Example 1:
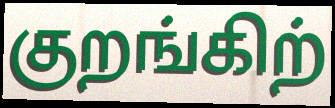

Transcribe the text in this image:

குறங்கிற்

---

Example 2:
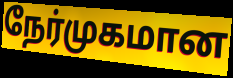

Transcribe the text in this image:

நேர்முகமான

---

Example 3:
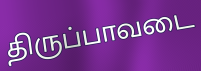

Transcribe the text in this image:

திருப்பாவடை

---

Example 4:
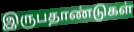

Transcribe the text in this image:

இருபதாண்டுகள்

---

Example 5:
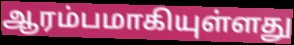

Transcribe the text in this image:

ஆரம்பமாகியுள்ளது